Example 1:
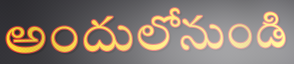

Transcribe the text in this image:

అందులోనుండి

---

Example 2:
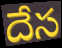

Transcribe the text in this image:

దేస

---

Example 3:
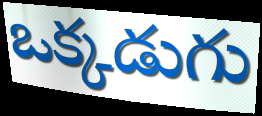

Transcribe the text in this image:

ఒక్కడుగు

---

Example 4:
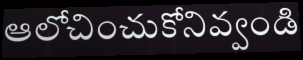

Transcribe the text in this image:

ఆలోచించుకోనివ్వండి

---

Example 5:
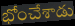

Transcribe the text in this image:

భోంచేశాడు